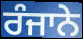
ਰੰਜਾਨੇ